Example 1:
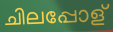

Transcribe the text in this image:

ചിലപ്പോള്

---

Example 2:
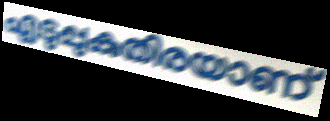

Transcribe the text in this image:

എടുപ്പുകുതിരയാണ്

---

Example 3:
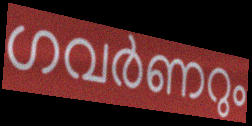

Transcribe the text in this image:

ഗവർണറും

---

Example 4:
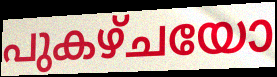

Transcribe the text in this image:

പുകഴ്ചയോ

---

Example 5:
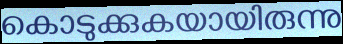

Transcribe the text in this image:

കൊടുക്കുകയായിരുന്നു